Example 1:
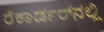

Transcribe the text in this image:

ರೆಕಾರ್ಡರ್‌ನಲ್ಲಿ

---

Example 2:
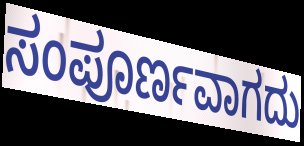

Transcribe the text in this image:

ಸಂಪೂರ್ಣವಾಗದು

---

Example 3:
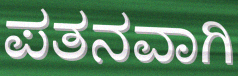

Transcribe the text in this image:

ಪತನವಾಗಿ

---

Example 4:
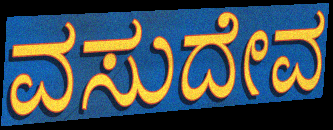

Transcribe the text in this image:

ವಸುದೇವ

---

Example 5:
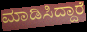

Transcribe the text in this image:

ಮಾಡಿಸಿದ್ದಾರೆ